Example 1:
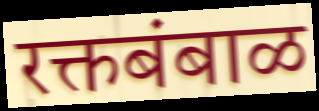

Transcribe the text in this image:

रक्तबंबाळ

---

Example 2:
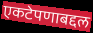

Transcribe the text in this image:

एकटेपणाबद्दल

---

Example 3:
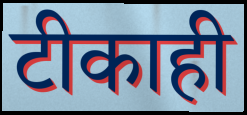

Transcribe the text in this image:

टीकाही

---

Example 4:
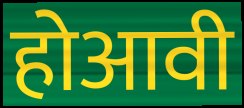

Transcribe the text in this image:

होआवी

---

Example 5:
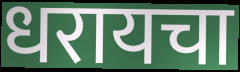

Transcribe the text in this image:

धरायचा